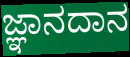
ಜ್ಞಾನದಾನ